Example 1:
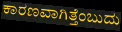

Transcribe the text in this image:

ಕಾರಣವಾಗಿತ್ತೆಂಬುದು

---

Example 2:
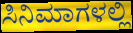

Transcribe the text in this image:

ಸಿನಿಮಾಗಳಲ್ಲಿ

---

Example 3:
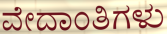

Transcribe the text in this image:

ವೇದಾಂತಿಗಳು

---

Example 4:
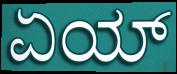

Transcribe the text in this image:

ಏಯ್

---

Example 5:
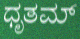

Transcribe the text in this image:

ಧೃತಮ್